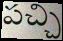
పచ్చి